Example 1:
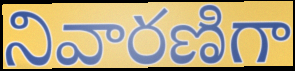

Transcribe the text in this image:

నివారణిగా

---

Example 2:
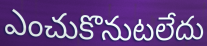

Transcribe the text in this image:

ఎంచుకొనుటలేదు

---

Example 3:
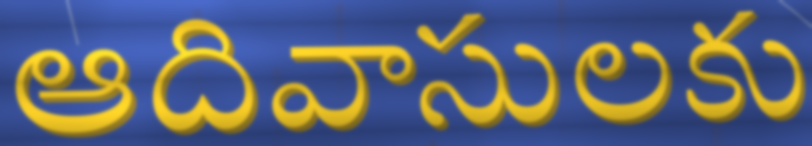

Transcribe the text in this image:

ఆదివాసులకు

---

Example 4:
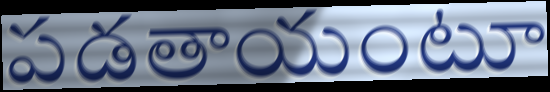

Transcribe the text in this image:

పడతాయంటూ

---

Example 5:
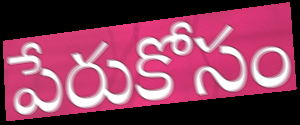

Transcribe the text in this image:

పేరుకోసం